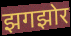
झगझोर